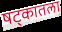
षट्कातला